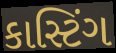
કાસ્ટિંગ